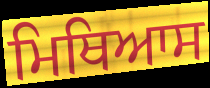
ਮਿਥਿਆਸ